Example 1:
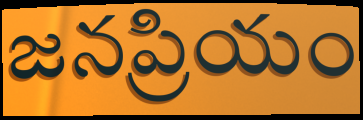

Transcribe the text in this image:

జనప్రియం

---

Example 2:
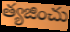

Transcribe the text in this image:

త్యజించు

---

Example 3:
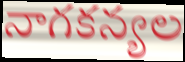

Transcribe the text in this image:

నాగకన్యల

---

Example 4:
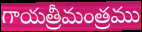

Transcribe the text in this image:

గాయత్రీమంత్రము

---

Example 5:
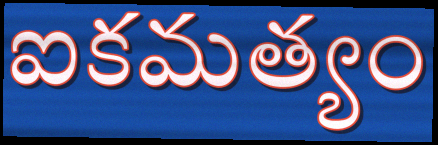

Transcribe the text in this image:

ఐకమత్యం